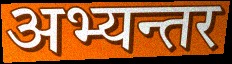
अभ्यन्तर